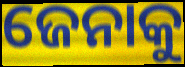
ଜେନାକୁ